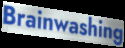
Brainwashing